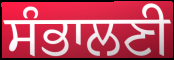
ਸੰਭਾਲਣੀ